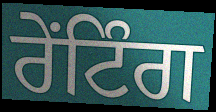
ਰੇਂਟਿੰਗ